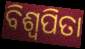
ବିଶ୍ୱପିତା